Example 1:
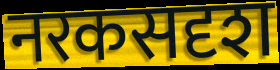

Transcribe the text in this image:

नरकसदृश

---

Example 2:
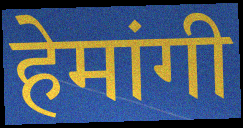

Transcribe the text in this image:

हेमांगी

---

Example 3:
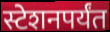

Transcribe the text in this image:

स्टेशनपर्यंत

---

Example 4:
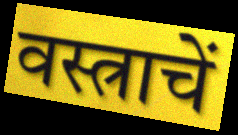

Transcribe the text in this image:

वस्त्राचें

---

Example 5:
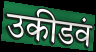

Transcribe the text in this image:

उकीडवं